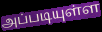
அப்படியுள்ள